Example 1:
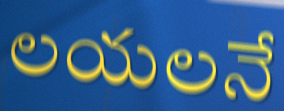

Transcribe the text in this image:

లయలనే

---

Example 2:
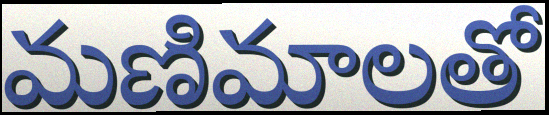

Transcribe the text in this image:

మణిమాలతో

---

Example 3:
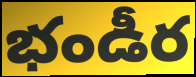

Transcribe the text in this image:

భండీర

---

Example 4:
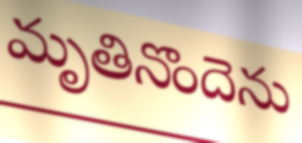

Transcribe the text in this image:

మృతినొందెను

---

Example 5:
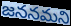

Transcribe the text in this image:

జననమని